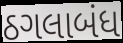
ઠગલાબંધ